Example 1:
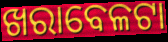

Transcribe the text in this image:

ଖରାବେଳଟା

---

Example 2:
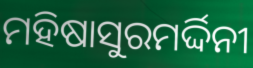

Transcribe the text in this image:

ମହିଷାସୁରମର୍ଦ୍ଦିନୀ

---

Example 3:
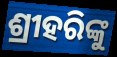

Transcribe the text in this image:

ଶ୍ରୀହରିଙ୍କୁ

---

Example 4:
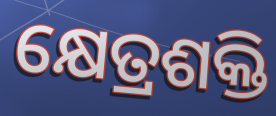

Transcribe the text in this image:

କ୍ଷେତ୍ରଶକ୍ତି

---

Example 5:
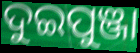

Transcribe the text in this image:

ଦୁଇପୁଞ୍ଜା